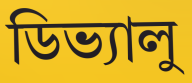
ডিভ্যালু